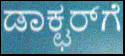
ಡಾಕ್ಟರ್‌ಗೆ